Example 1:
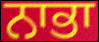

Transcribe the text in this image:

ਨਾਭਾ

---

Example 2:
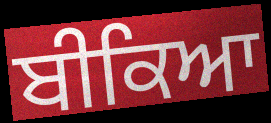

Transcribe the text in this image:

ਬੀਕਿਆ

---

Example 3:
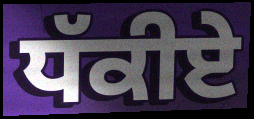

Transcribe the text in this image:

ਧੱਕੀਏ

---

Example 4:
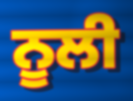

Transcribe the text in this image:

ਨੂਲੀ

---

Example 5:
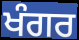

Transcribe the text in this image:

ਖੰਗਰ